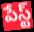
పేస్ట్